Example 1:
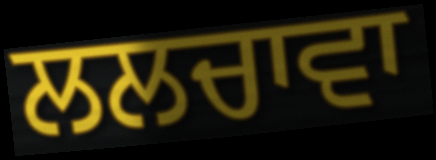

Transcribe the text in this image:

ਲਲਚਾਵਾ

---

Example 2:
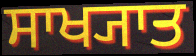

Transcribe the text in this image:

ਸਾਖ੍ਯਾਤ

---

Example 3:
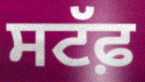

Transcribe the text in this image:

ਸਟੱਫ਼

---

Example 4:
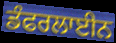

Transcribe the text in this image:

ਡੰਫਰਲਾਈਨ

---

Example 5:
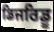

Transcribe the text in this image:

ਡਿਜਰਿਡੂ